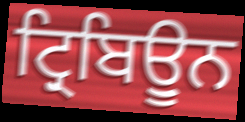
ਟ੍ਰਿਬਿਉੂਨ